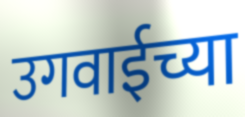
उगवाईच्या